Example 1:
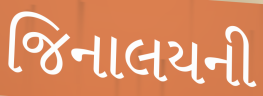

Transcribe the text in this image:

જિનાલયની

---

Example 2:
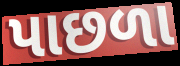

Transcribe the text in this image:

પાછળા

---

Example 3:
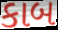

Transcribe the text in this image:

કાબ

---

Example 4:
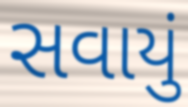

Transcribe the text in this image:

સવાયું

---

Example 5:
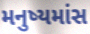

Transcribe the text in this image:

મનુષ્યમાંસ